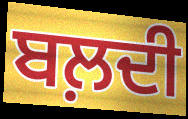
ਬਲ਼ਦੀ